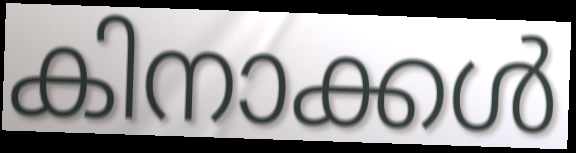
കിനാക്കൾ